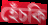
হেঁচকি